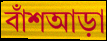
বাঁশআড়া